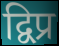
द्विप्र